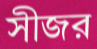
সীজর